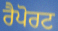
ਰੈਪੋਰਟ